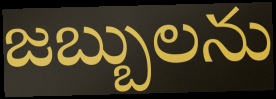
జబ్బులను